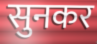
सुनकर